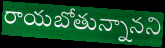
రాయబోతున్నానని